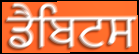
ਡੈਬਿਟਸ